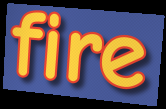
fire